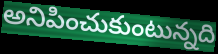
అనిపించుకుంటున్నది